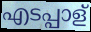
എടപ്പാള്